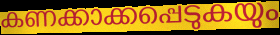
കണക്കാക്കപ്പെടുകയും